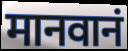
मानवानं